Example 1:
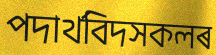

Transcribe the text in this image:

পদাৰ্থবিদসকলৰ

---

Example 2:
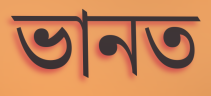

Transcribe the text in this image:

ভানত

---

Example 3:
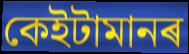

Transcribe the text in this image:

কেইটামানৰ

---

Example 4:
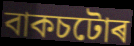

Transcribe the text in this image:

বাকচটোৰ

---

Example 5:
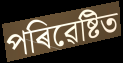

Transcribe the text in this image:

পৰিৱেষ্টিত